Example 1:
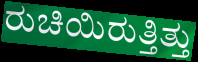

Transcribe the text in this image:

ರುಚಿಯಿರುತ್ತಿತ್ತು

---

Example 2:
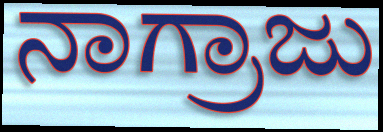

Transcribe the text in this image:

ನಾಗ್ರಾಜು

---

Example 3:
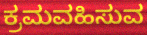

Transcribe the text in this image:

ಕ್ರಮವಹಿಸುವ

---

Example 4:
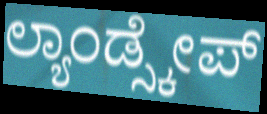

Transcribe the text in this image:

ಲ್ಯಾಂಡ್ಸ್ಕೇಪ್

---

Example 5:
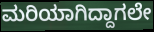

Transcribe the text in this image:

ಮರಿಯಾಗಿದ್ದಾಗಲೇ